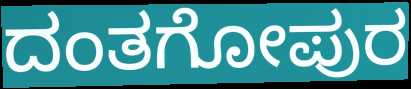
ದಂತಗೋಪುರ